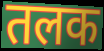
तलक